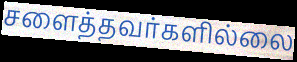
சளைத்தவர்களில்லை